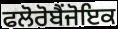
ਫਲੋਰੋਬੈਂਜੋਇਕ